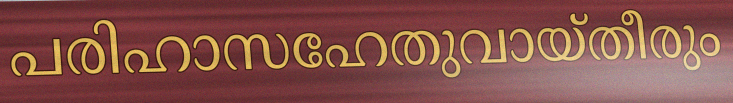
പരിഹാസഹേതുവായ്തീരും